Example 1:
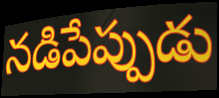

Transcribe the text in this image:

నడిపేప్పుడు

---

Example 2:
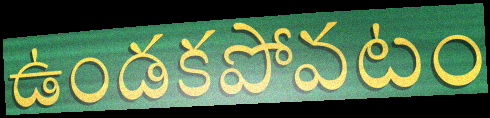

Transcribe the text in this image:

ఉండకపోవటం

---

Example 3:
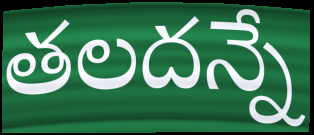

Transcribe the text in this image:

తలదన్నే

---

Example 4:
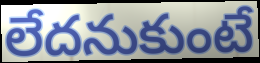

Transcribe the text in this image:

లేదనుకుంటే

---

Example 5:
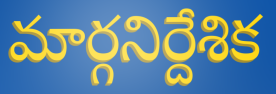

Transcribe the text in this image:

మార్గనిర్దేశిక